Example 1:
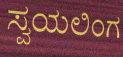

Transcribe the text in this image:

ಸ್ವಯಲಿಂಗ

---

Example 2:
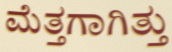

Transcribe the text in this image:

ಮೆತ್ತಗಾಗಿತ್ತು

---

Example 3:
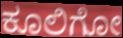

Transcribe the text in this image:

ಕೂಲಿಗೋ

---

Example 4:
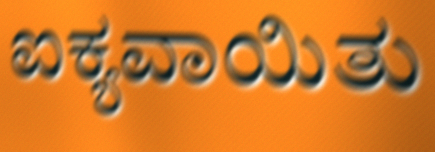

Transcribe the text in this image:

ಐಕ್ಯವಾಯಿತು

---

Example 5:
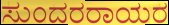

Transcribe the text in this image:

ಸುಂದರರಾಯರ